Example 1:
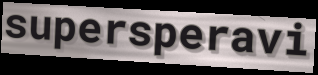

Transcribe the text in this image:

supersperavi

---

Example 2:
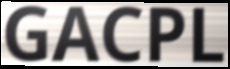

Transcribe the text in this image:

GACPL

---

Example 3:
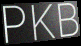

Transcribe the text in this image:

PKB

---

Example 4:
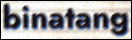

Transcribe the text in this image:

binatang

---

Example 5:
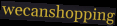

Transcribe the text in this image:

wecanshopping